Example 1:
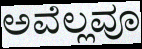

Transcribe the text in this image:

ಅವೆಲ್ಲವೂ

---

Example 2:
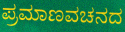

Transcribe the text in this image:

ಪ್ರಮಾಣವಚನದ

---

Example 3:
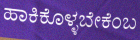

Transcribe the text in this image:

ಹಾಕಿಕೊಳ್ಳಬೇಕೆಂಬ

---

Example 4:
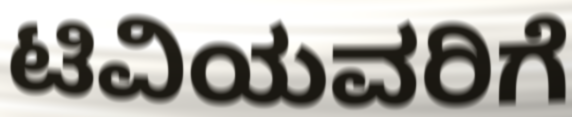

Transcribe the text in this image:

ಟಿವಿಯವರಿಗೆ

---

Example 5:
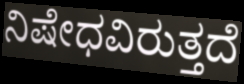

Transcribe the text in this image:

ನಿಷೇಧವಿರುತ್ತದೆ